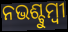
ନଭଶ୍ଚୁମ୍ବୀ